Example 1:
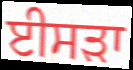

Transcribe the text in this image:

ਈਸੜਾ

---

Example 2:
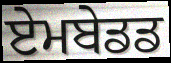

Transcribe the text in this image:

ਏਮਬੇਡਡ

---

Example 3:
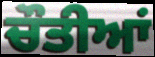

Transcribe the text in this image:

ਚੌਤੀਆਂ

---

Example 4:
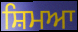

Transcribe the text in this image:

ਸ਼ਿਮਆ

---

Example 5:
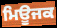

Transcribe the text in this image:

ਮਿਊਜਕ